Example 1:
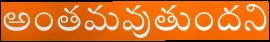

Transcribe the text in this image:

అంతమవుతుందని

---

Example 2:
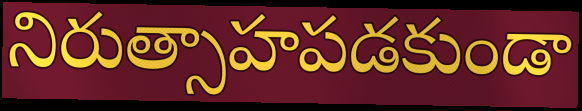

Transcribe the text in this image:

నిరుత్సాహపడకుండా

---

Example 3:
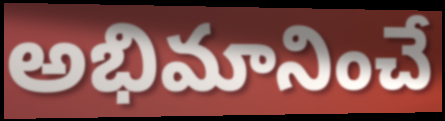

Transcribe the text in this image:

అభిమానించే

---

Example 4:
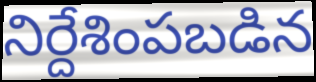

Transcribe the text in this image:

నిర్దేశింపబడిన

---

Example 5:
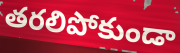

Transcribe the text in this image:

తరలిపోకుండా